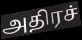
அதிரச்